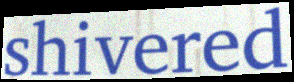
shivered